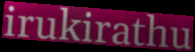
irukirathu